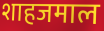
शाहजमाल